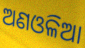
ଅଣଓଳିଆ